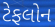
ટેફલોન